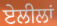
ਏਲੀਲਾਂ